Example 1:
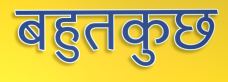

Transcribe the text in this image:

बहुतकुछ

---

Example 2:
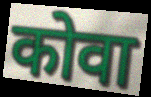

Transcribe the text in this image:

कोवा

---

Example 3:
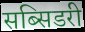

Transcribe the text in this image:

सब्सिडरी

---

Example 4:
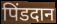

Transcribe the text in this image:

पिंडदान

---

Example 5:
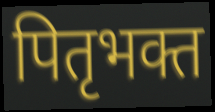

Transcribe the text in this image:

पितृभक्त